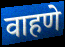
वाहणे